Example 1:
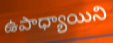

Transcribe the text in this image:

ఉపాధ్యాయిని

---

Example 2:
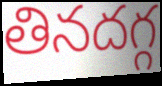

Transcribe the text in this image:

తినదగ్గ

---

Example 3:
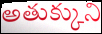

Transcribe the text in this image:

అతుక్కుని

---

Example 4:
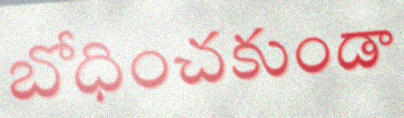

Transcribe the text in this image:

బోధించకుండా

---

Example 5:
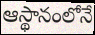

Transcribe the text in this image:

ఆస్థానంలోనే